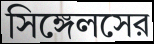
সিঙ্গেলসের